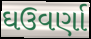
ઘઉવર્ણા